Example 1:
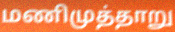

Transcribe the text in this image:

மணிமுத்தாறு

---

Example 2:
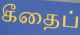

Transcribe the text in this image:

கீதைப்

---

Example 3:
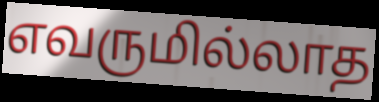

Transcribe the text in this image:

எவருமில்லாத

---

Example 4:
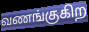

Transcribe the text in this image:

வணங்குகிற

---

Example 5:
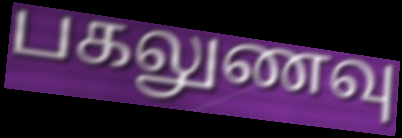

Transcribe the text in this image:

பகலுணவு